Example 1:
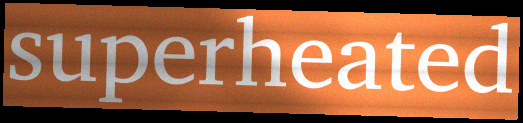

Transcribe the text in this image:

superheated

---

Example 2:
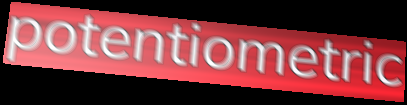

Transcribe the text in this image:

potentiometric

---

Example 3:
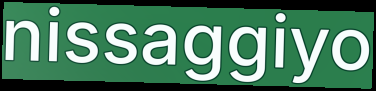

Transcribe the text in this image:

nissaggiyo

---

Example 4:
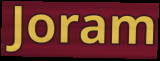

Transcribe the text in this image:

Joram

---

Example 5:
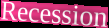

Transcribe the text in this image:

Recession